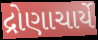
દ્રોણાચાર્યે